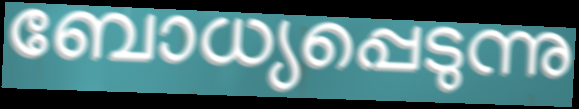
ബോധ്യപ്പെടുന്നു